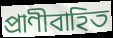
প্রাণীবাহিত